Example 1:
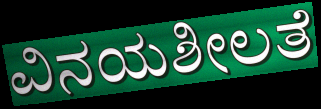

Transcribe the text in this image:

ವಿನಯಶೀಲತೆ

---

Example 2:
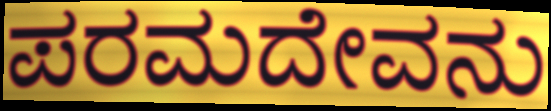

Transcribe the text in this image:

ಪರಮದೇವನು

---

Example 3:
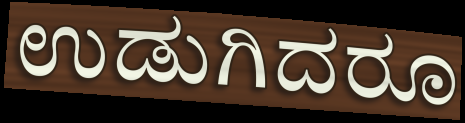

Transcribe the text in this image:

ಉಡುಗಿದರೂ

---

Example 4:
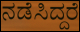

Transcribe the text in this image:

ನಡೆಸಿದ್ದರೆ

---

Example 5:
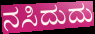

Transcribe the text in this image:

ನಸಿದುದು